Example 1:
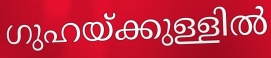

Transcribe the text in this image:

ഗുഹയ്ക്കുള്ളിൽ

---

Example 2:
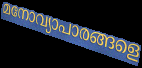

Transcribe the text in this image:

മനോവ്യാപാരങ്ങളെ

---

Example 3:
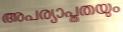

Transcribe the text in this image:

അപര്യാപ്തതയും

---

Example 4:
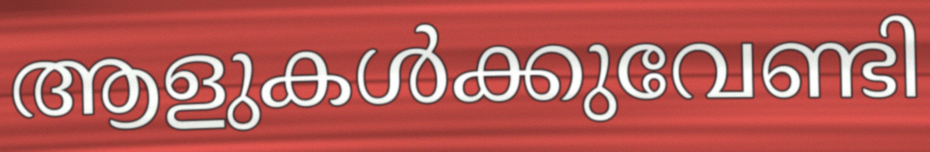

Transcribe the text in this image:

ആളുകൾക്കുവേണ്ടി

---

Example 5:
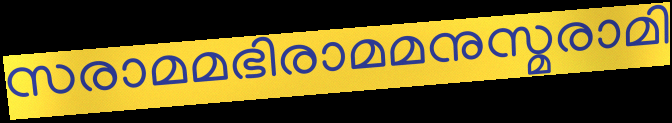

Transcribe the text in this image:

സരാമമഭിരാമമനുസ്മരാമി